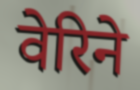
वेरिने